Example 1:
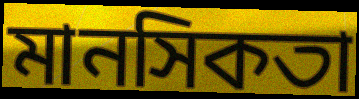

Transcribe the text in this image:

মানসিকতা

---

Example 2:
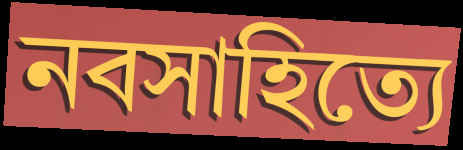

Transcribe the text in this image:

নবসাহিত্যে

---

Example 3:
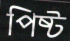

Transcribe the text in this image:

পিষ্ট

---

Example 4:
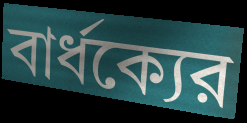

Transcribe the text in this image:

বার্ধক্যের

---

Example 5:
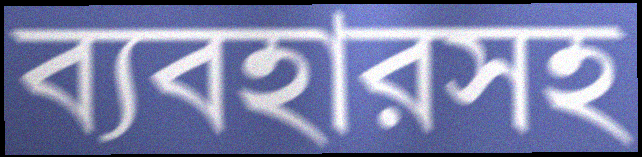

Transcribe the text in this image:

ব্যবহারসহ